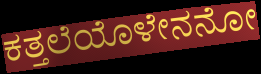
ಕತ್ತಲೆಯೊಳೇನನೋ